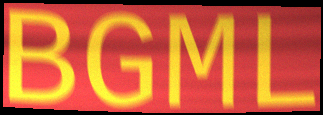
BGML